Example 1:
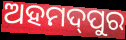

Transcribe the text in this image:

ଅହମଦ୍‌ପୁର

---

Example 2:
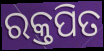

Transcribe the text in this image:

ରକ୍ତପିତ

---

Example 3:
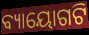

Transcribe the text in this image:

ବ୍ୟାୟୋଗଟି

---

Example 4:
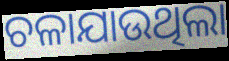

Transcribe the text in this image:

ଚଳାଯାଉଥିଲା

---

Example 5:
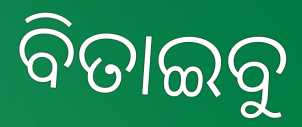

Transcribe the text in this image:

ବିତାଇବୁ